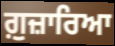
ਗ਼ੁਜ਼ਾਰਿਆ